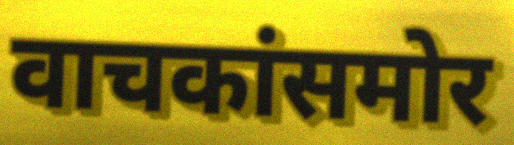
वाचकांसमोर